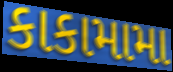
કાકામામા